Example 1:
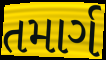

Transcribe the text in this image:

તમાર્ગ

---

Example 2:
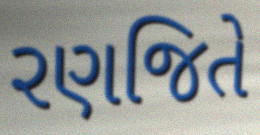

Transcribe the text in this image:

રણજિતે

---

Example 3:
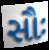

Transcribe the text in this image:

સૌઃ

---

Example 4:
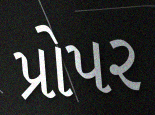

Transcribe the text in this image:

પ્રોપર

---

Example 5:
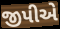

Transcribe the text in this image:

જીપીએ